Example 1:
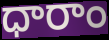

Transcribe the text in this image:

ధారాం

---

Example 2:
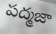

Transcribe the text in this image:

పద్మజా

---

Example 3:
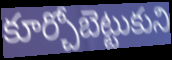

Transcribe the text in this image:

కూర్చోబెట్టుకుని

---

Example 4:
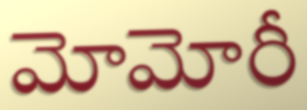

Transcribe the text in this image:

మోమోరీ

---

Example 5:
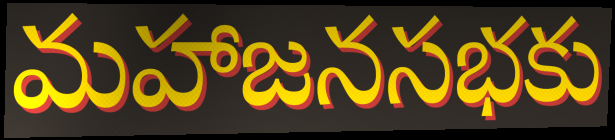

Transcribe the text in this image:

మహాజనసభకు